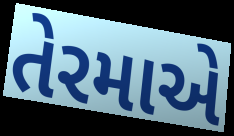
તેરમાએ